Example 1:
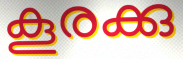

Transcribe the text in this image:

കൂരക്കു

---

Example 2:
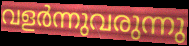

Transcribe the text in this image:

വളർന്നുവരുന്നു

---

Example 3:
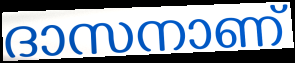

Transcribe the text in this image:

ദാസനാണ്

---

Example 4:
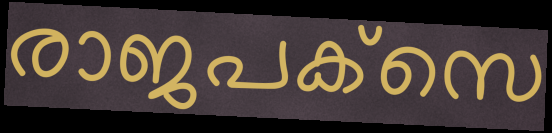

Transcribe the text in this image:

രാജപക്‌സെ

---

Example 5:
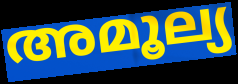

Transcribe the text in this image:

അമൂല്യ